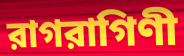
রাগরাগিণী